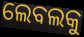
ଲେବଲକୁ